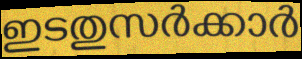
ഇടതുസർക്കാർ